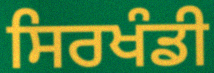
ਸਿਰਖੰਡੀ